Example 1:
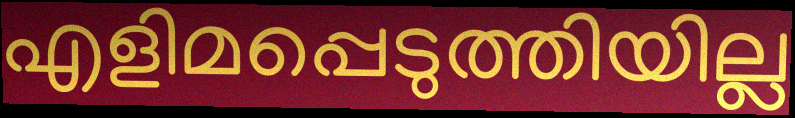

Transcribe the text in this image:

എളിമപ്പെടുത്തിയില്ല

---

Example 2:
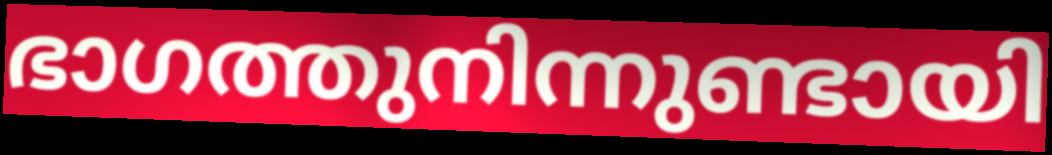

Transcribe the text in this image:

ഭാഗത്തുനിന്നുണ്ടായി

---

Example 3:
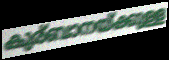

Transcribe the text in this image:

കുര്ബാനയ്ക്കുള്ള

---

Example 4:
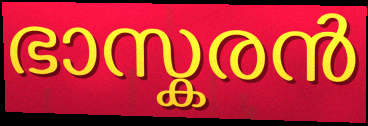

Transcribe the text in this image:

ഭാസ്കരൻ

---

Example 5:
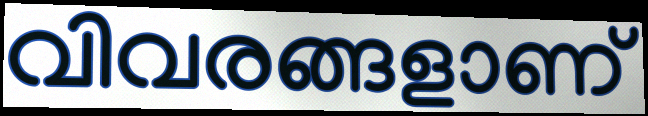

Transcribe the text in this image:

വിവരങ്ങളാണ്